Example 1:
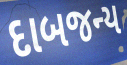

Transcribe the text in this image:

દાબજન્ય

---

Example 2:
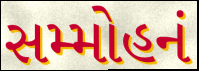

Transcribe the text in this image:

સમ્મોહનં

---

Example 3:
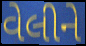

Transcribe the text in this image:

વેલીને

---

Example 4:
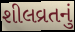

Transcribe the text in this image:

શીલવ્રતનું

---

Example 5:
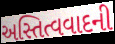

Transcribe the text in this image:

અસ્તિત્વવાદની